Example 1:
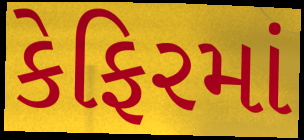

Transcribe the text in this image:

કેફિરમાં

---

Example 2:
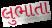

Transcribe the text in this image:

લુભાતા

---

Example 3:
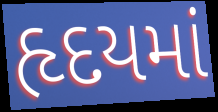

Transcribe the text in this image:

હૃદયમાં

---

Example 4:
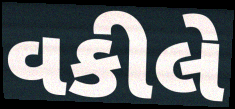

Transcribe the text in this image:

વકીલે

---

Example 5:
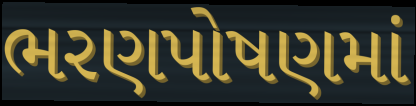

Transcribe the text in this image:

ભરણપોષણમાં